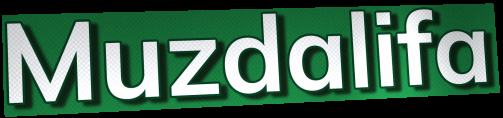
Muzdalifa